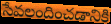
సేవలందించడానికి